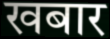
खबार